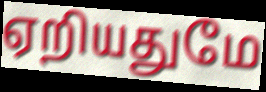
ஏறியதுமே